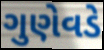
ગુણેવડે